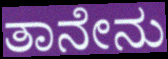
ತಾನೇನು